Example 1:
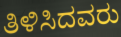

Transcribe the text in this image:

ತಿಳಿಸಿದವರು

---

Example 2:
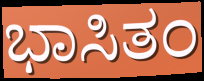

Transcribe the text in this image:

ಭಾಸಿತಂ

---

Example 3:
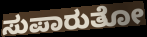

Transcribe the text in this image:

ಸುಪಾರುತೋ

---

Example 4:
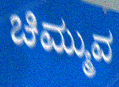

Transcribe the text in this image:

ಚಿಮ್ಮುವ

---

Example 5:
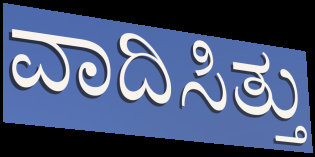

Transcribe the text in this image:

ವಾದಿಸಿತ್ತು